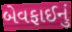
બેવફાઈનું